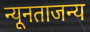
न्यूनताजन्य